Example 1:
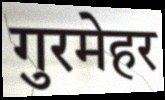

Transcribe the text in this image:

गुरमेहर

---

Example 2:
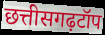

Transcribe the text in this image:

छत्तीसगढ़टॉप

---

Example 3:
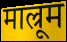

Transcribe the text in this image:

माल्रूम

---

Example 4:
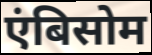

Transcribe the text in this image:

एंबिसोम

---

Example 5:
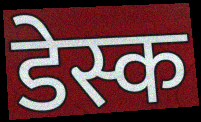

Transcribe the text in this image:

डेस्क